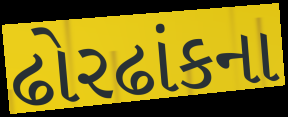
ઢોરઢાંકના